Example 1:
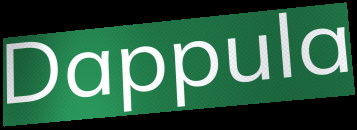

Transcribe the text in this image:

Dappula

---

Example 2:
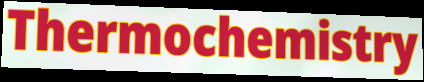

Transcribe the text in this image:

Thermochemistry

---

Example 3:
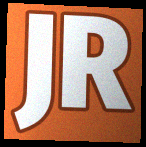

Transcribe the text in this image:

JR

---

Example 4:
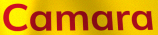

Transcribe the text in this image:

Camara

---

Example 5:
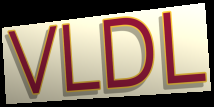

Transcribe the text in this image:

VLDL